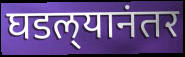
घडल्यानंतर